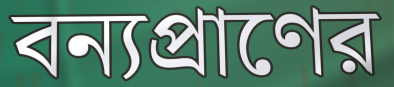
বন্যপ্রাণের